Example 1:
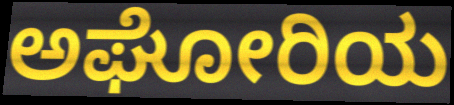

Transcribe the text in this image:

ಅಘೋರಿಯ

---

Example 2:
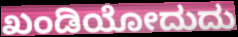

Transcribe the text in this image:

ಖಂಡಿಯೋದುದು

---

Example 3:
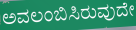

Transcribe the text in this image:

ಅವಲಂಬಿಸಿರುವುದೇ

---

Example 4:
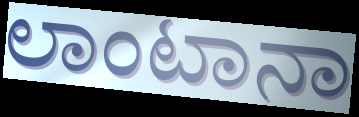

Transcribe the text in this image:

ಲಾಂಟಾನಾ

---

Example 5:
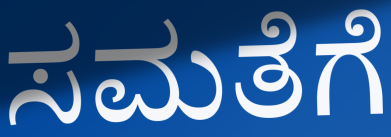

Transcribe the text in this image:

ಸಮತೆಗೆ